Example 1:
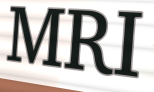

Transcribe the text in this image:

MRI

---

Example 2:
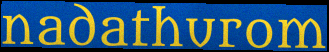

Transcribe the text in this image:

nadathurom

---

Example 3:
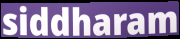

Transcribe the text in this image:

siddharam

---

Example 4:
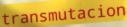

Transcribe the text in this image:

transmutacion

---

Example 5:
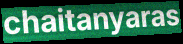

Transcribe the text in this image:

chaitanyaras